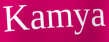
Kamya